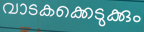
വാടകക്കെടുക്കും